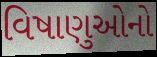
વિષાણુઓનો